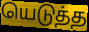
யெடுத்த